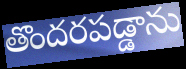
తొందరపడ్డాను